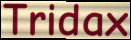
Tridax